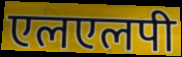
एलएलपी